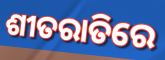
ଶୀତରାତିରେ